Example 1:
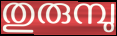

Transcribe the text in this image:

തുരുമ്പു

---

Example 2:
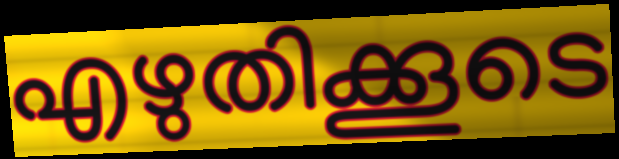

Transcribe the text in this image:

എഴുതിക്കൂടെ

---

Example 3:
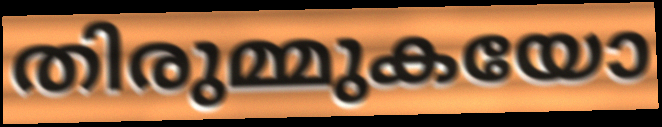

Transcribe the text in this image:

തിരുമ്മുകയോ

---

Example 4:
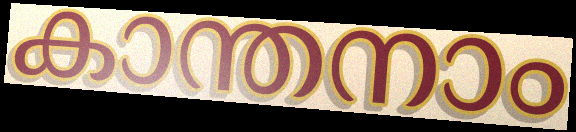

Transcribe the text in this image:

കാന്തനാം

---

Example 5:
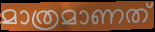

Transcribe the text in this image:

മാത്രമാണത്